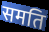
समति